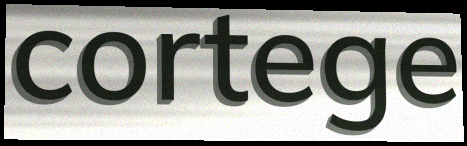
cortege